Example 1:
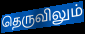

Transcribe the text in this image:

தெருவிலும்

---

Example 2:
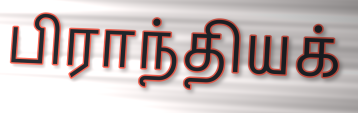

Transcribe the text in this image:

பிராந்தியக்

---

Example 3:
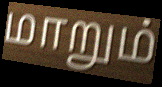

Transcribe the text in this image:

மாறும்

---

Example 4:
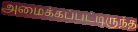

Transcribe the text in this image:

அமைக்கப்பட்டிருந்த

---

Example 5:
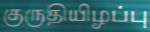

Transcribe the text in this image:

குருதியிழப்பு